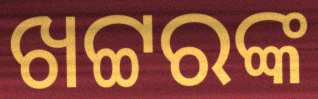
ଖଟ୍ଟରଙ୍କ